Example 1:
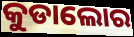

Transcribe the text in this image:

କୁଡାଲୋର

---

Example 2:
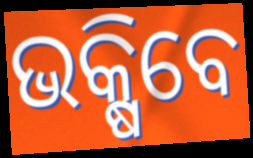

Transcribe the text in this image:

ଭକ୍ଷିବେ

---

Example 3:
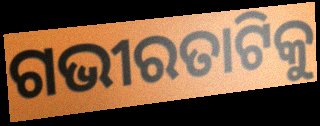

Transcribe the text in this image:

ଗଭୀରତାଟିକୁ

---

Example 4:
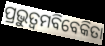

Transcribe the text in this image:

ପ୍ରଭୁତ୍ୱମବିବେକିତା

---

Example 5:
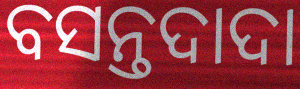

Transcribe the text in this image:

ବସନ୍ତଦାଦା